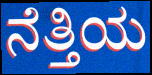
ನೆತ್ತಿಯ